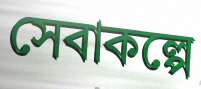
সেবাকল্পে